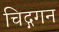
चिद्गगन